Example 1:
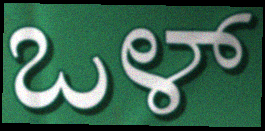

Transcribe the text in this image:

ಒಳ್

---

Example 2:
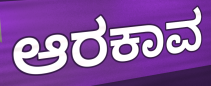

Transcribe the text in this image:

ಆರಕಾವ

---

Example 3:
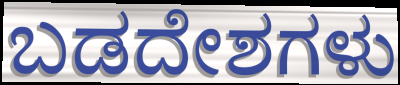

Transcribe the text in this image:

ಬಡದೇಶಗಳು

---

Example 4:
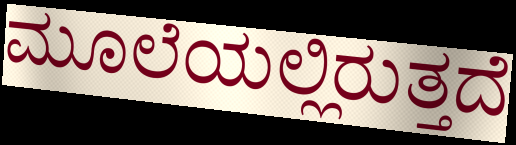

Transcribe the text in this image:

ಮೂಲೆಯಲ್ಲಿರುತ್ತದೆ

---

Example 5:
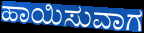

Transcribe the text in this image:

ಹಾಯಿಸುವಾಗ